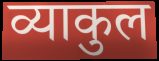
व्याकुल